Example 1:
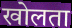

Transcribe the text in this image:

खोलता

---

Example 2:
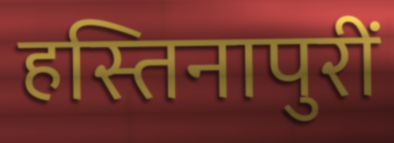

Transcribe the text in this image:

हस्तिनापुरीं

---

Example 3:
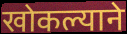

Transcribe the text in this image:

खोकल्याने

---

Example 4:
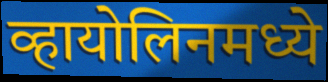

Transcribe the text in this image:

व्हायोलिनमध्ये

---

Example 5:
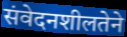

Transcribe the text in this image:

संवेदनशीलतेने